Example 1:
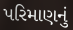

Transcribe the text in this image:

પરિમાણનું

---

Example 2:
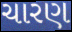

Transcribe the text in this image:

ચારણ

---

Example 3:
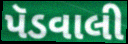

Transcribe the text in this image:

પૅડવાલી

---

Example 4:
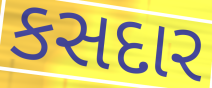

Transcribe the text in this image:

કસદાર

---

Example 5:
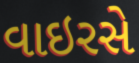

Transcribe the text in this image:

વાઇરસે